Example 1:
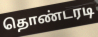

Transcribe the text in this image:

தொண்டரடி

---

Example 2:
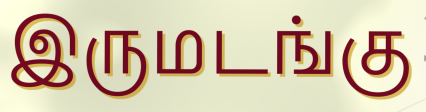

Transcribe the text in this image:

இருமடங்கு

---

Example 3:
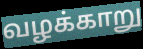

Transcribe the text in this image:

வழக்காறு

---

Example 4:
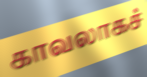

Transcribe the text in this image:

காவலாகச்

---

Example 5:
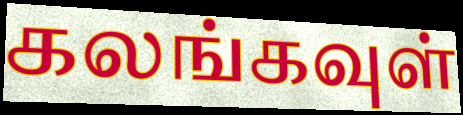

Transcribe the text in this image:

கலங்கவுள்